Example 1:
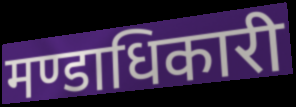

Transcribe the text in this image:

मण्डाधिकारी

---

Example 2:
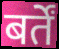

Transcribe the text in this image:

बर्तें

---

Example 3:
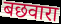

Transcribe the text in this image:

बछवारा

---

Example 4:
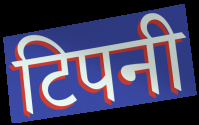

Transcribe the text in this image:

टिपनी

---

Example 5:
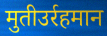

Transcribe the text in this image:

मुतीउर्रहमान